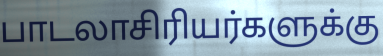
பாடலாசிரியர்களுக்கு